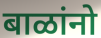
बाळांनो